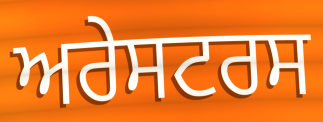
ਅਰੇਸਟਰਸ